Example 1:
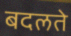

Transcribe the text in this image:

बदलते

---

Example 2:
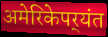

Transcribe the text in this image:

अमेरिकेपर्यंत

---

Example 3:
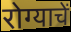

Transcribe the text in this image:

रोग्याचें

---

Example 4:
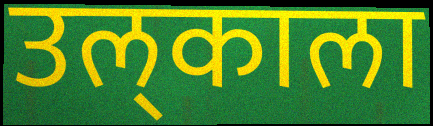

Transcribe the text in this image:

उल्काला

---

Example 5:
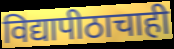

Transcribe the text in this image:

विद्यापीठाचाही